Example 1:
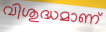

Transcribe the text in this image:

വിശുദ്ധമാണ്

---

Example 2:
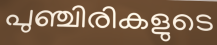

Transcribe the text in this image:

പുഞ്ചിരികളുടെ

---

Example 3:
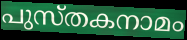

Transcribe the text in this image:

പുസ്തകനാമം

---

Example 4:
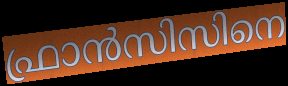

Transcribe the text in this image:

ഫ്രാൻസിസിനെ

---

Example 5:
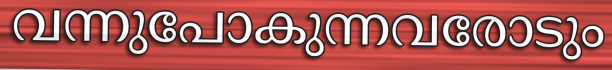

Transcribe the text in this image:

വന്നുപോകുന്നവരോടും